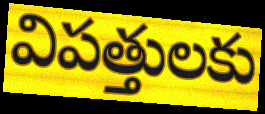
విపత్తులకు